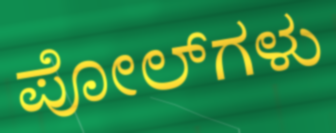
ಪೋಲ್‌ಗಳು